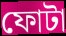
ফোটা